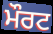
ਮੌਰਟ